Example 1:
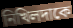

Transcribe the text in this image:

নিখিলদাকে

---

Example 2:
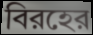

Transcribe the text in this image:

বিরহের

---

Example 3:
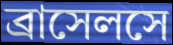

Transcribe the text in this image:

ব্রাসেলসে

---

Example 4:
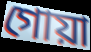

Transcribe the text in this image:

গোয়া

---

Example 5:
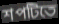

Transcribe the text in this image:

শপটিতে